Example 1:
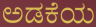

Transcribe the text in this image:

ಅಡಕೆಯ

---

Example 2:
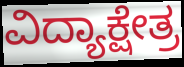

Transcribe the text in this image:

ವಿದ್ಯಾಕ್ಷೇತ್ರ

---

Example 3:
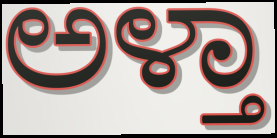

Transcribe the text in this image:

ಅಳ್ತಾ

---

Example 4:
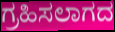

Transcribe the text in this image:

ಗ್ರಹಿಸಲಾಗದ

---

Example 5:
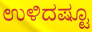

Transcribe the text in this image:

ಉಳಿದಷ್ಟೂ